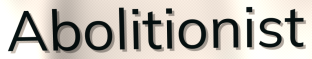
Abolitionist